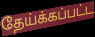
தேய்க்கப்பட்ட